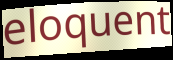
eloquent